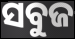
ସବୁଜ